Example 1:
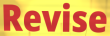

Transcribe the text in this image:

Revise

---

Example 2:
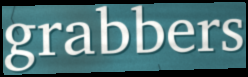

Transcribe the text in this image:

grabbers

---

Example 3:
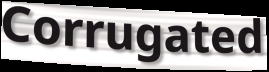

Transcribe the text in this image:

Corrugated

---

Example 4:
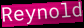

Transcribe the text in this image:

Reynold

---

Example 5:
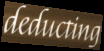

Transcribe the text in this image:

deducting